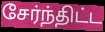
சேர்ந்திட்ட